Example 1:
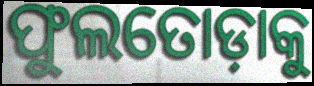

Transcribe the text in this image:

ଫୁଲତୋଡ଼ାକୁ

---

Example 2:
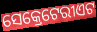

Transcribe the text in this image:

ସେକ୍ରେଟେରୀଏଟ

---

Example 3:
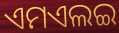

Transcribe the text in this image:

ଏମଏଲଇ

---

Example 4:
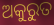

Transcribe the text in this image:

ଅକୁରୁତ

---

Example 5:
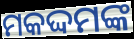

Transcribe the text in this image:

ମକଦ୍ଦମଙ୍କ